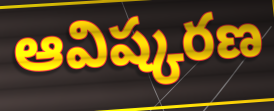
ఆవిష్కరణ